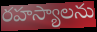
రహస్యాలను